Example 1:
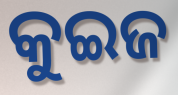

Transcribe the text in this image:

କୁଇଜ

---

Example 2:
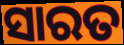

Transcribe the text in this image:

ସାରତ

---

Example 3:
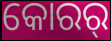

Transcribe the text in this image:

କୋରର୍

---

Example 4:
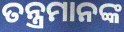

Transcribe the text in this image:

ତନ୍ତ୍ରମାନଙ୍କ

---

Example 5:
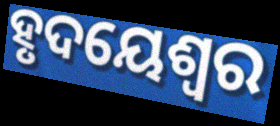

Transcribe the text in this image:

ହୃଦୟେଶ୍ୱର